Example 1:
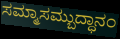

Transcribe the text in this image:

ಸಮ್ಮಾಸಮ್ಬುದ್ಧಾನಂ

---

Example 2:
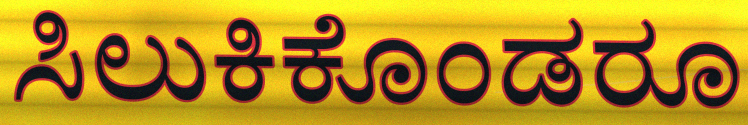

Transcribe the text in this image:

ಸಿಲುಕಿಕೊಂಡರೂ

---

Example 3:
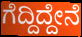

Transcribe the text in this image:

ಗೆದ್ದಿದ್ದೇನೆ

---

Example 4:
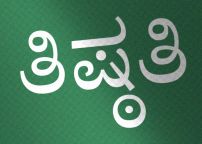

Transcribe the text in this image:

ತಿಷ್ಠತಿ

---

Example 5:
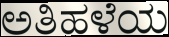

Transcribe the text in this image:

ಅತಿಹಳೆಯ